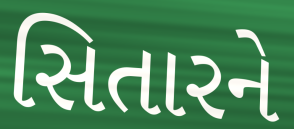
સિતારને